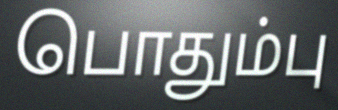
பொதும்பு